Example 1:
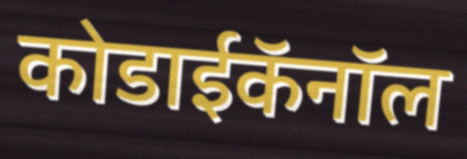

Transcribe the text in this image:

कोडाईकॅनॉल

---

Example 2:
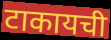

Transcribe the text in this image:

टाकायची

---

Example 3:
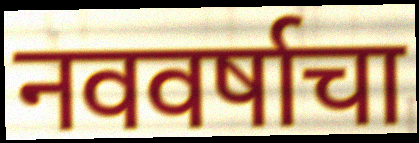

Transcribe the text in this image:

नववर्षाचा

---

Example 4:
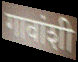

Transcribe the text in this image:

गावांशी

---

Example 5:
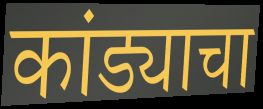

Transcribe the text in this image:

कांड्याचा